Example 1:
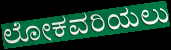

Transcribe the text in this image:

ಲೋಕವರಿಯಲು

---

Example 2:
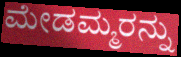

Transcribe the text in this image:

ಮೇಡಮ್ಮರನ್ನು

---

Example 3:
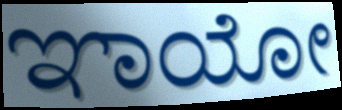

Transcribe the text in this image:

ಞಾಯೋ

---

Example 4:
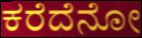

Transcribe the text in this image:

ಕರೆದೆನೋ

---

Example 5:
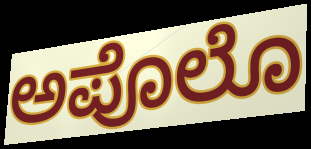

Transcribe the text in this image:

ಅಪೊಲೊ